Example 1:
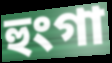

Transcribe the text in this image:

হুংগা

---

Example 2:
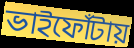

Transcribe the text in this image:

ভাইফোঁটায়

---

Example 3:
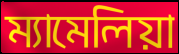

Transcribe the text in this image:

ম্যামেলিয়া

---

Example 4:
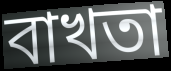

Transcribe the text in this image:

বাখতা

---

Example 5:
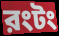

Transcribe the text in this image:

রংটং